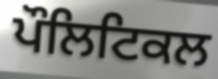
ਪੌਲਿਟਿਕਲ